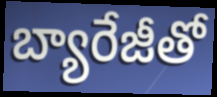
బ్యారేజీతో